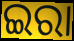
ଇରା